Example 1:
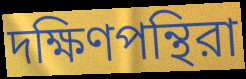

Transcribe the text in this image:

দক্ষিণপন্থিরা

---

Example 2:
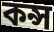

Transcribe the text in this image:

কন্স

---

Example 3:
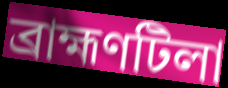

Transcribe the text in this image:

ব্রাহ্মণটিলা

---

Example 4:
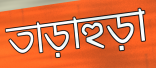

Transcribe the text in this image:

তাড়াহুড়া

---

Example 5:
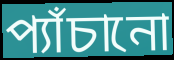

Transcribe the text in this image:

প্যাঁচানো